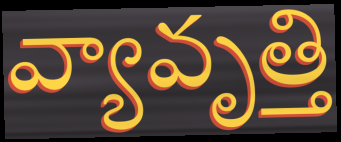
వ్యావృత్తి